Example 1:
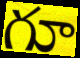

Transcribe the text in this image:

గూ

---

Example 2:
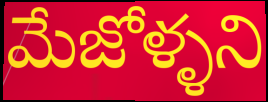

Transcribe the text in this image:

మేజోళ్ళని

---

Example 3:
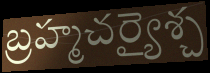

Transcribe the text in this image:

బ్రహ్మచర్యైశ్చ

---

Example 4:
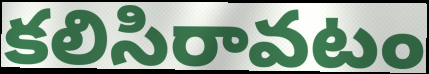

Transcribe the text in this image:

కలిసిరావటం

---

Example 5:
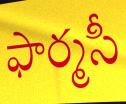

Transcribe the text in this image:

ఫార్మసీ